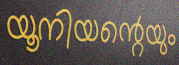
യൂനിയന്റെയും